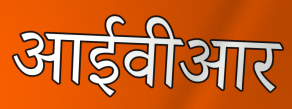
आईवीआर